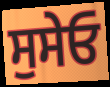
ਸੁਸੇਓ